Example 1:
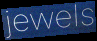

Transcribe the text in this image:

jewels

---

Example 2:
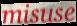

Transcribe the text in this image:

misuse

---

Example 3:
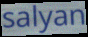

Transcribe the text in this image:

salyan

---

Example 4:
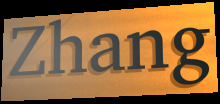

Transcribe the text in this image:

Zhang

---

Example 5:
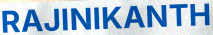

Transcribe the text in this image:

RAJINIKANTH